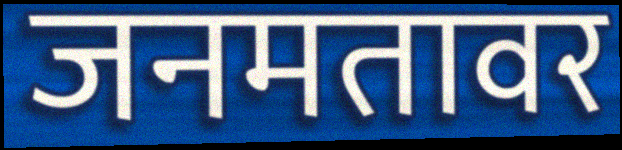
जनमतावर